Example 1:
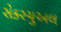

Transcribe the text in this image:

સેક્સ્યુઅલ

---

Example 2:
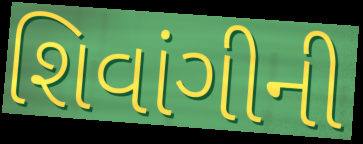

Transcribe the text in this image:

શિવાંગીની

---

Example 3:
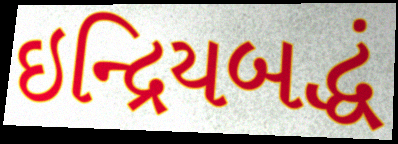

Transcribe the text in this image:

ઇન્દ્રિયબદ્ધં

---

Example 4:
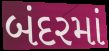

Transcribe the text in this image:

બંદરમાં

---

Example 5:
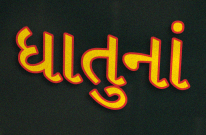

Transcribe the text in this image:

ધાતુનાં